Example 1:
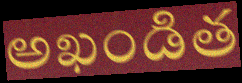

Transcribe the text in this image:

అఖండిత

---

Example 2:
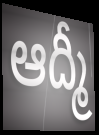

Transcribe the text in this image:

ఆద్మీ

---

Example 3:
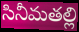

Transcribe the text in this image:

సినీమతల్లి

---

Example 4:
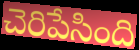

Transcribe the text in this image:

చెరిపేసింది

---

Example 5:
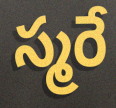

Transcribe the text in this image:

స్మరే